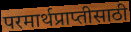
परमार्थप्राप्तीसाठी